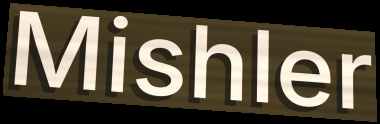
Mishler